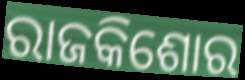
ରାଜକିଶୋର